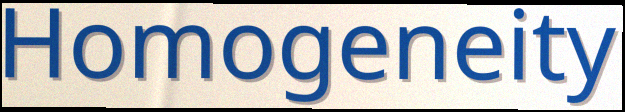
Homogeneity